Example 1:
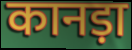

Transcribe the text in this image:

कानड़ा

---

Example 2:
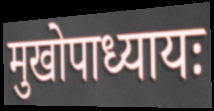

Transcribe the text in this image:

मुखोपाध्यायः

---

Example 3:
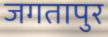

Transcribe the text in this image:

जगतापुर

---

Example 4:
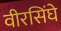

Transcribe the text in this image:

वीरसिंघे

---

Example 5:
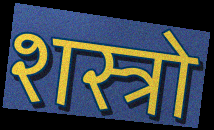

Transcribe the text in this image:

शस्त्रो